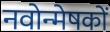
नवोन्‍मेषकों